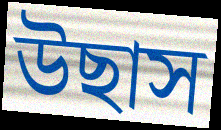
উছাস